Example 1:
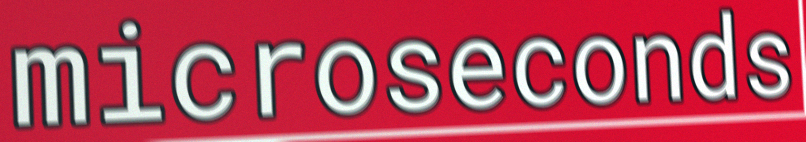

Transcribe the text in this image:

microseconds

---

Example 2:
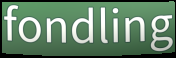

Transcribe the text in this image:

fondling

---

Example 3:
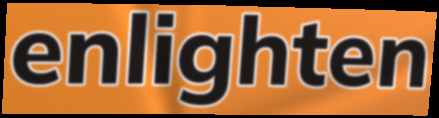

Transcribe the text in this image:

enlighten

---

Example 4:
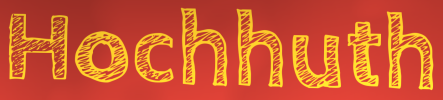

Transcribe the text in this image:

Hochhuth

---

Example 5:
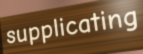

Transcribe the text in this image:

supplicating